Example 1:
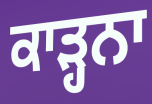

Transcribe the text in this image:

ਕਾੜ੍ਹਨਾ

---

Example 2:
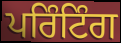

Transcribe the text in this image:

ਪਰਿੰਟਿੰਗ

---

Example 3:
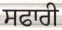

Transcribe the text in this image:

ਸਫਾਰੀ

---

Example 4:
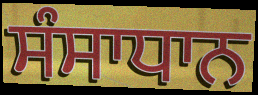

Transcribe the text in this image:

ਸੰਸਾਧਾਨ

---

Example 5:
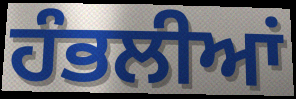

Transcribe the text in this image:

ਹੰਭਲੀਆਂ